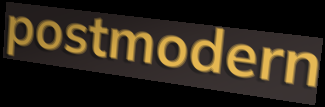
postmodern